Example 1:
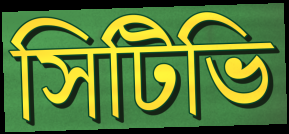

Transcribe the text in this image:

সিটিভি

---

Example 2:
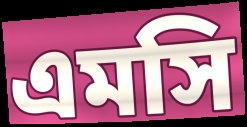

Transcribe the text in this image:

এমসি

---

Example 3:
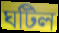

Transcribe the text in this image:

ঘটিল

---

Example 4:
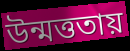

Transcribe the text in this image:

উন্মত্ততায়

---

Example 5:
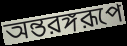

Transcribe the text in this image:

অন্তরঙ্গরূপে